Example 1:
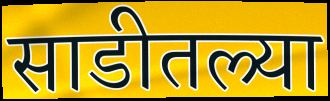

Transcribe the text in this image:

साडीतल्या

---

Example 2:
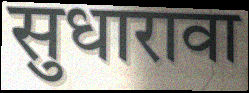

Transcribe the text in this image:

सुधारावा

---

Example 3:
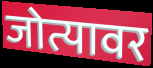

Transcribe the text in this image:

जोत्यावर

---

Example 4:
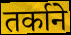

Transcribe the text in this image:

तर्काने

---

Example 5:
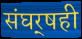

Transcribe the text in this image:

संघर्षही